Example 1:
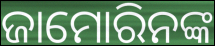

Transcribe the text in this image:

ଜାମୋରିନଙ୍କ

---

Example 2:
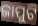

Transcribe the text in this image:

ଜାପୁଟି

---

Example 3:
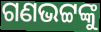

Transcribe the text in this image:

ଗଣଭଟ୍ଟଙ୍କୁ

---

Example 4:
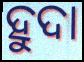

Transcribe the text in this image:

ହୁଦା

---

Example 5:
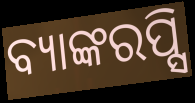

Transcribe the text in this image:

ବ୍ୟାଙ୍କରପ୍ସି